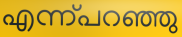
എന്ന്പറഞ്ഞു